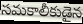
సమకాలీకుడైన